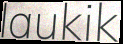
laukik